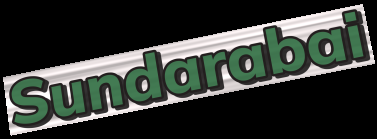
Sundarabai